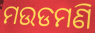
ମଉଡମଣି